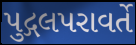
પુદ્ગલપરાવર્તે